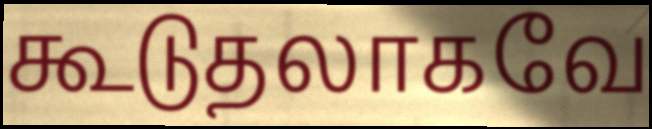
கூடுதலாகவே